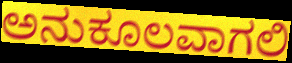
ಅನುಕೂಲವಾಗಲಿ